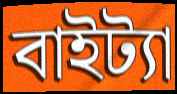
বাইট্যা